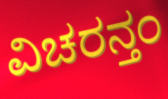
ವಿಚರನ್ತಂ